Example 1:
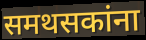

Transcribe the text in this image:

समथसकांना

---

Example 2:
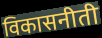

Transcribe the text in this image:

विकासनीती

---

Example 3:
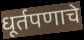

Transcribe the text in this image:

धूर्तपणाचे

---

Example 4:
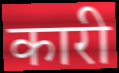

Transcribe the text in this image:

कारी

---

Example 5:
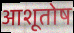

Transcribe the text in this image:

आशूतोष